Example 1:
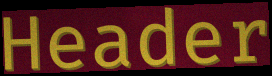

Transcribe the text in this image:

Header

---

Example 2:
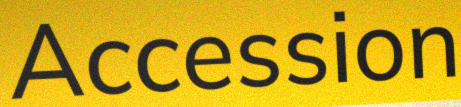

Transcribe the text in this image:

Accession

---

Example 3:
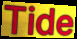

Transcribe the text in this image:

Tide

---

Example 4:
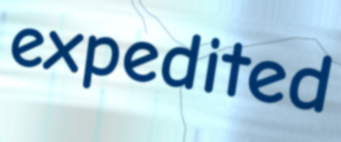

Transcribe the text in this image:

expedited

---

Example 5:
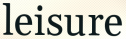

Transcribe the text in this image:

leisure